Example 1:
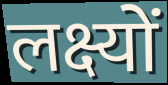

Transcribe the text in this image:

लक्ष्‍यों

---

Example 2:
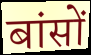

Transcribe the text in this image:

बांसों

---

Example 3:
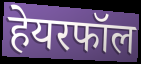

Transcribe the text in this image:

हेयरफॉल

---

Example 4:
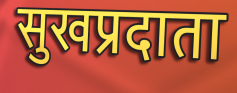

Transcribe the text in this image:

सुखप्रदाता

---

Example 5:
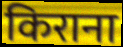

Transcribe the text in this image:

किराना